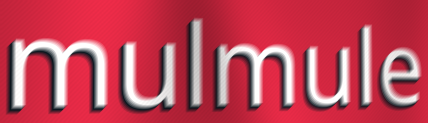
mulmule